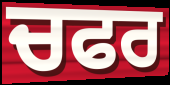
ਚਫਰ